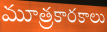
మూత్రకారకాలు